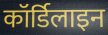
कॉर्डिलाइन